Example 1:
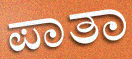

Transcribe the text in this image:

ಪಾತಾ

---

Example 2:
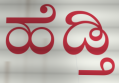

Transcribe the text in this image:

ಹೆಡ್ತಿ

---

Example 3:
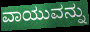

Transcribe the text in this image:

ವಾಯುವನ್ನು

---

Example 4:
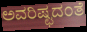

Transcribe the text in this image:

ಅವರಿಷ್ಟದಂತೆ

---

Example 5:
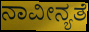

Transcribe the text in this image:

ನಾವೀನ್ಯತೆ